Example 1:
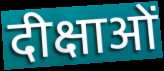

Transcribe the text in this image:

दीक्षाओं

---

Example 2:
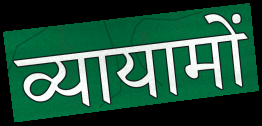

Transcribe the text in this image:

व्यायामों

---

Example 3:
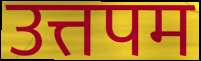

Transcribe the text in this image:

उत्तपम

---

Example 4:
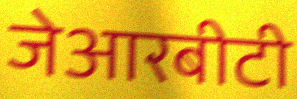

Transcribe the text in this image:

जेआरबीटी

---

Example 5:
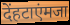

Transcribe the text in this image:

देंहटाएंमजा